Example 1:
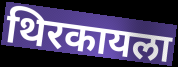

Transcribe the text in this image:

थिरकायला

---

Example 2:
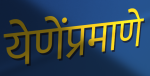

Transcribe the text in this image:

येणेंप्रमाणे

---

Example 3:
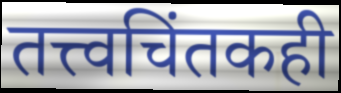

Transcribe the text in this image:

तत्त्वचिंतकही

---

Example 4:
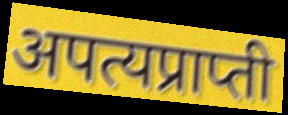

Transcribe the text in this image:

अपत्यप्राप्ती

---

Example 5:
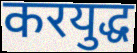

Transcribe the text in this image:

करयुद्ध